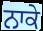
ਨਾਕੇ